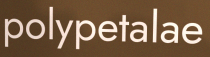
polypetalae